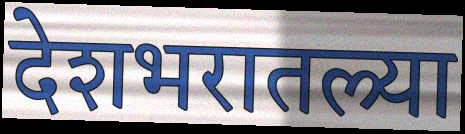
देशभरातल्या